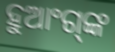
ହୁଆଂଗ୍‍ଙ୍କ